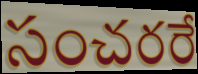
సంచరరే